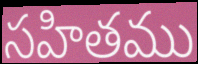
సహితము